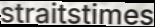
straitstimes